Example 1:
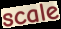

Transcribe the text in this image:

scale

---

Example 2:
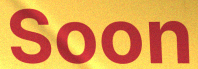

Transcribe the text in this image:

Soon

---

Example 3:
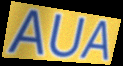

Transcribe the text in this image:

AUA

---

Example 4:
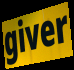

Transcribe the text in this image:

giver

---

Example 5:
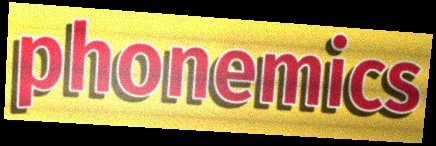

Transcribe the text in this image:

phonemics